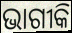
ଭାଗୀକି